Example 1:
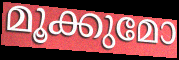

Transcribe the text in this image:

മൂക്കുമോ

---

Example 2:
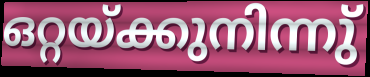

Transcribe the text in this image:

ഒറ്റയ്ക്കുനിന്നു്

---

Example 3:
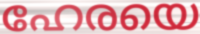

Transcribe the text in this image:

ഹേരയെ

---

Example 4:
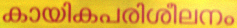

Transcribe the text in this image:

കായികപരിശീലനം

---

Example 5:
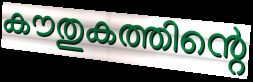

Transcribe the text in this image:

കൗതുകത്തിന്റെ